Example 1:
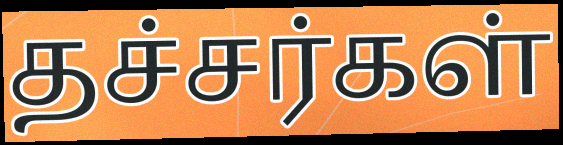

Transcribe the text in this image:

தச்சர்கள்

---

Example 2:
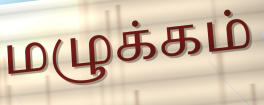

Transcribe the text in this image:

மழுக்கம்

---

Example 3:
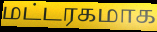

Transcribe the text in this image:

மட்டரகமாக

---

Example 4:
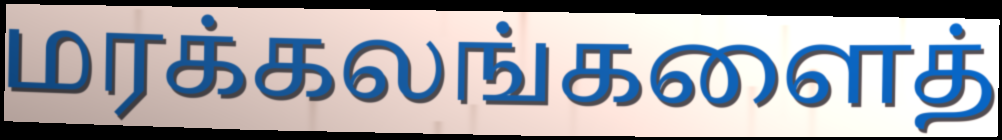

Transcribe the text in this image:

மரக்கலங்களைத்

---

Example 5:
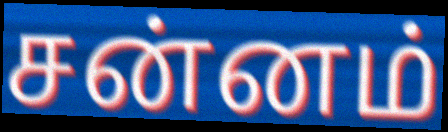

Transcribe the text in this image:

சன்னம்